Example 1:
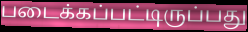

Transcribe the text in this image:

படைக்கப்பட்டிருப்பது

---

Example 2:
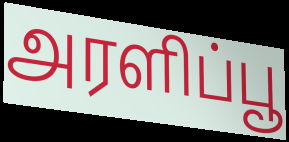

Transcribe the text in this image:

அரளிப்பூ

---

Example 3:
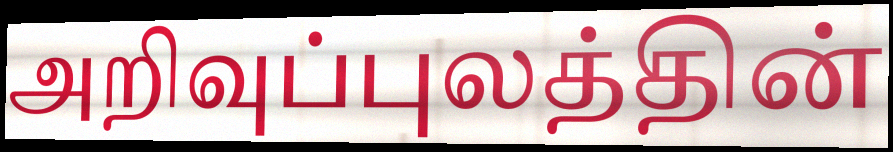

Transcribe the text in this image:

அறிவுப்புலத்தின்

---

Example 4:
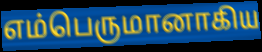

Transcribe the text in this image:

எம்பெருமானாகிய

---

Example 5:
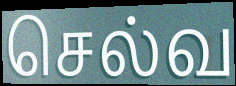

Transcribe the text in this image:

செல்வ